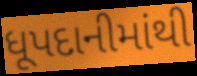
ધૂપદાનીમાંથી